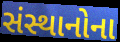
સંસ્થાનોના